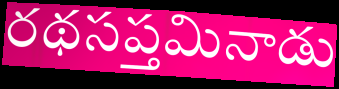
రథసప్తమినాడు